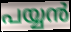
പയ്യൻ